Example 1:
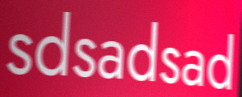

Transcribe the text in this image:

sdsadsad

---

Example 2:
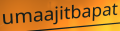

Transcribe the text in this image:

umaajitbapat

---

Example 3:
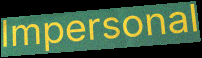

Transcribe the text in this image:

Impersonal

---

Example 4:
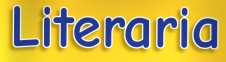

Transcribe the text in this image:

Literaria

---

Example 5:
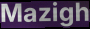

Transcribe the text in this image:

Mazigh